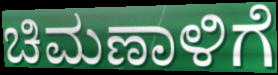
ಚಿಮಣಾಳಿಗೆ